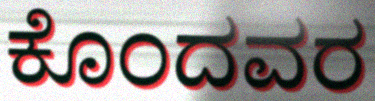
ಕೊಂದವರ